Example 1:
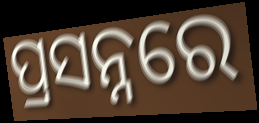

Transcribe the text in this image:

ପ୍ରସନ୍ନରେ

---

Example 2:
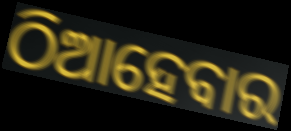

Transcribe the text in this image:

ଠିଆହେବାର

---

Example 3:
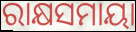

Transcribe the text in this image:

ରାକ୍ଷସମାୟା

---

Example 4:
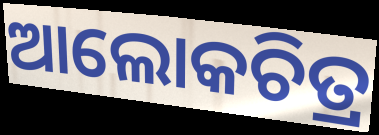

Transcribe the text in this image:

ଆଲୋକଚିତ୍ର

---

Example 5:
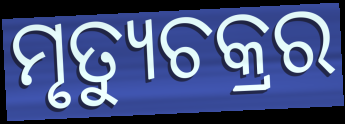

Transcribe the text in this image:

ମୃତ୍ୟୁଚକ୍ରର